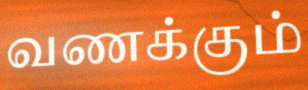
வணக்கும்